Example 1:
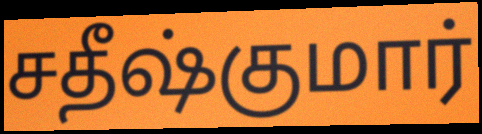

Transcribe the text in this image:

சதீஷ்குமார்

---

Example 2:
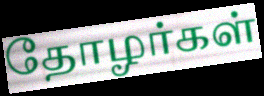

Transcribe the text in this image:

தோழர்கள்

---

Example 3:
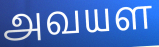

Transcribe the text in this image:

அவயள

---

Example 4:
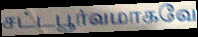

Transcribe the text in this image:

சட்டபூர்வமாகவே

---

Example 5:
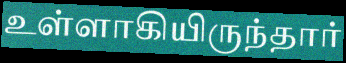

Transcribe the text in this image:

உள்ளாகியிருந்தார்